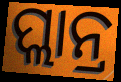
ପ୍ଲାନ୍ର